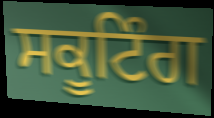
ਸਕੂਟਿੰਗ